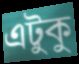
এটুকু